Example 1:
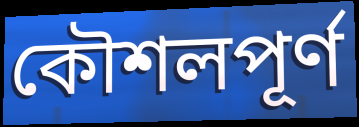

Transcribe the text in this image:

কৌশলপূর্ণ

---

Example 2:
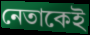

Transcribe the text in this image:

নেতাকেই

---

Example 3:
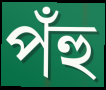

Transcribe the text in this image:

পঁহু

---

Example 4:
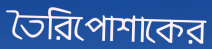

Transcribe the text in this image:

তৈরিপোশাকের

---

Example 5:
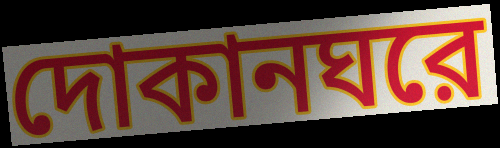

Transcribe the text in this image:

দোকানঘরে